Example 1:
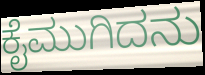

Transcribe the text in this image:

ಕೈಮುಗಿದನು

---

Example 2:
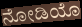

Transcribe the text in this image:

ನೋಡಿಯೊ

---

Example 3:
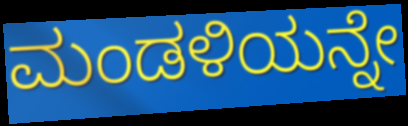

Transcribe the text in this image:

ಮಂಡಳಿಯನ್ನೇ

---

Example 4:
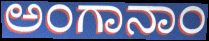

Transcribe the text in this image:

ಅಂಗಾನಾಂ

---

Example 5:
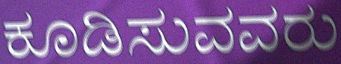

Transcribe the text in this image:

ಕೂಡಿಸುವವರು